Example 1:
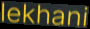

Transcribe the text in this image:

lekhani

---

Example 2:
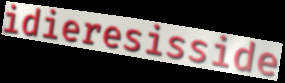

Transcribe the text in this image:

idieresisside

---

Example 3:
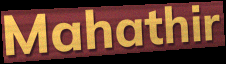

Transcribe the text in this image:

Mahathir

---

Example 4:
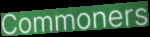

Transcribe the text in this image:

Commoners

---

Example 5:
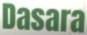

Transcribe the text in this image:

Dasara